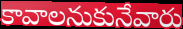
కావాలనుకునేవారు